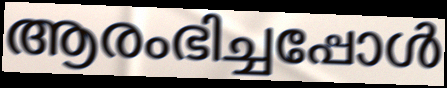
ആരംഭിച്ചപ്പോൾ